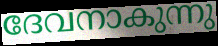
ദേവനാകുന്നു